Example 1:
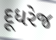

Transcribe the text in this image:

દૂધરેજ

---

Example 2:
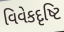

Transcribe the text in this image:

વિવેકદૃષ્ટિ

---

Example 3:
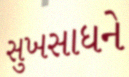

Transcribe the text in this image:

સુખસાધને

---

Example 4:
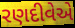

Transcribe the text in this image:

રણદીવેએ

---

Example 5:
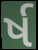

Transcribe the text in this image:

ર્ષ